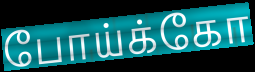
போய்க்கோ